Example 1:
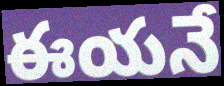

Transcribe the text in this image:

ఈయనే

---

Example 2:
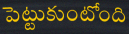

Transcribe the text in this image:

పెట్టుకుంటోంది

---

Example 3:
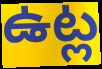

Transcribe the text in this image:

ఉట్ల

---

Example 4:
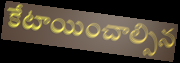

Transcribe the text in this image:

కేటాయించాల్సిన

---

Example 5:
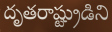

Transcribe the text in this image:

దృతరాష్ట్రుడిని